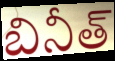
బినీత్